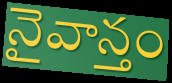
నైవాన్తం